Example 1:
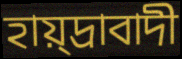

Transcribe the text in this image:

হায়্দ্রাবাদী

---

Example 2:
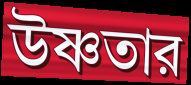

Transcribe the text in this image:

উষ্ণতার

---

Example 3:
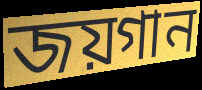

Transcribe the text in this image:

জয়গান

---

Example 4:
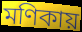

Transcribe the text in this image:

মণিকায়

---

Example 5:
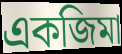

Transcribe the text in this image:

একজিমা